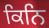
ਕਿਨਿ